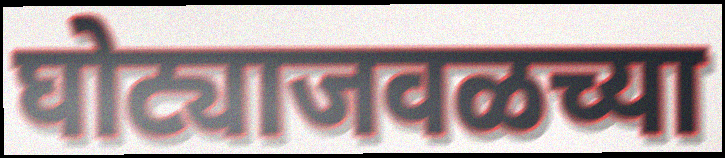
घोट्याजवळच्या